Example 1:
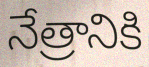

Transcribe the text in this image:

నేత్రానికి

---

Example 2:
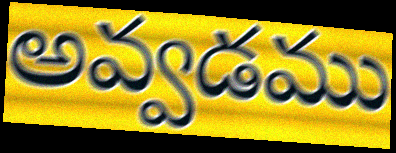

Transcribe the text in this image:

అవ్వడము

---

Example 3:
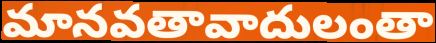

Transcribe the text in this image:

మానవతావాదులంతా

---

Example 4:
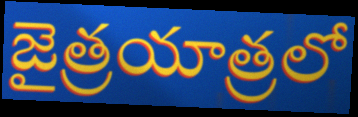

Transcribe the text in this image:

జైత్రయాత్రలో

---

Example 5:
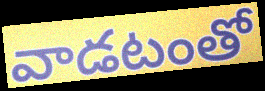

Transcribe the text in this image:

వాడటంతో